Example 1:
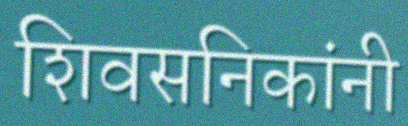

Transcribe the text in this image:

शिवसनिकांनी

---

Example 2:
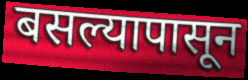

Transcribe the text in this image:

बसल्यापासून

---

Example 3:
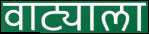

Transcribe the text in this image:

वाट्याला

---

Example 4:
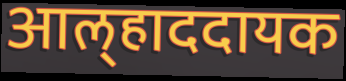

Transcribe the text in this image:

आल्हाददायक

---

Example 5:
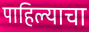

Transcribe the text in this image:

पाहिल्याचा